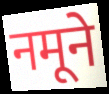
नमूने